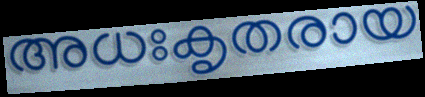
അധഃകൃതരായ